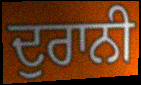
ਦੁਰਾਨੀ